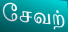
சேவற்